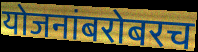
योजनांबरोबरच